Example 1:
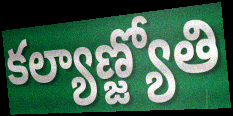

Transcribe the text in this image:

కల్యాణ్జ్యోతి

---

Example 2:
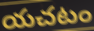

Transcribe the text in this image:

యచటం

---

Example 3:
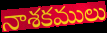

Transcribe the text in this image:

నాశకములు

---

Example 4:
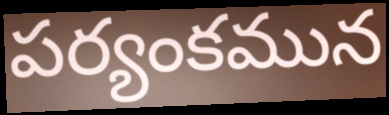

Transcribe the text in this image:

పర్యంకమున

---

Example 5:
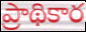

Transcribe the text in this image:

ప్రాథికార